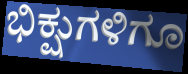
ಭಿಕ್ಷುಗಳಿಗೂ